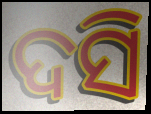
ଦସି